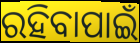
ରହିବାପାଇଁ